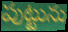
పుట్టును